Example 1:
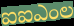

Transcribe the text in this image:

ఐఐఎంల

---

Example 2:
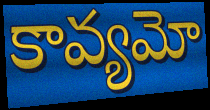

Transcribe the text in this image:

కావ్యమో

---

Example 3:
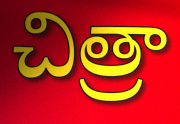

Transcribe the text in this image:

చిత్రా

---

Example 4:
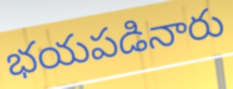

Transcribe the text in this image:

భయపడినారు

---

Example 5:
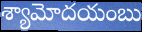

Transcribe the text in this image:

శ్యామోదయంబు